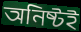
অনিষ্টই